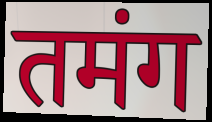
तमंग